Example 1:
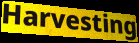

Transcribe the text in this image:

Harvesting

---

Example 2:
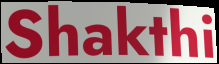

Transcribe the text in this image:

Shakthi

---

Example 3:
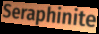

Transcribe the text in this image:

Seraphinite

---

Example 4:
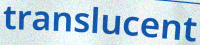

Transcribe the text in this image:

translucent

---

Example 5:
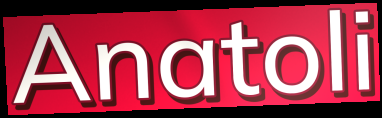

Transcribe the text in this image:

Anatoli